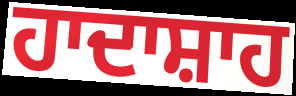
ਹਾਦਾਸ਼ਾਹ